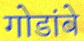
गोडांबे